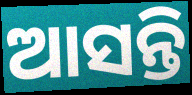
ଆସନ୍ତି